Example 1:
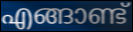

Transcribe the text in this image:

എങ്ങാണ്ട്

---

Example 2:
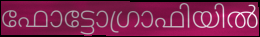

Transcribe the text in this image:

ഫോട്ടോഗ്രാഫിയിൽ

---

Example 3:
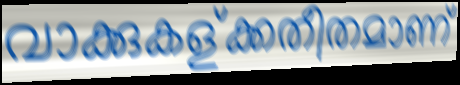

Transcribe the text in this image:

വാക്കുകള്ക്കതീതമാണ്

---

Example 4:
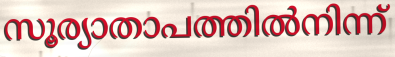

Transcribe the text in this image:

സൂര്യാതാപത്തിൽനിന്ന്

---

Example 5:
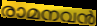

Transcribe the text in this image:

രാമനവൻ